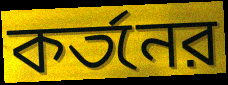
কর্তনের